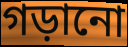
গড়ানো